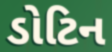
ડોટિન